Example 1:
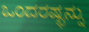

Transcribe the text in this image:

ಒಂದರಷ್ಟನ್ನು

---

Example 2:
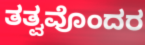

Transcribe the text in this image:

ತತ್ವವೊಂದರ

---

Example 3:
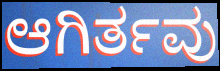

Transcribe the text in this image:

ಆಗಿರ್ತವು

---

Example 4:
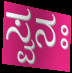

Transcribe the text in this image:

ಸ್ವನಃ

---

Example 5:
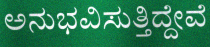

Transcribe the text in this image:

ಅನುಭವಿಸುತ್ತಿದ್ದೇವೆ